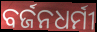
ବର୍ଜନଧର୍ମୀ